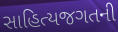
સાહિત્યજગતની